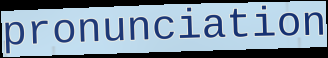
pronunciation